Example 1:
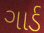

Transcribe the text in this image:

ગાર્ડ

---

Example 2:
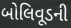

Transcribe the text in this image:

બોલિવૂડની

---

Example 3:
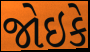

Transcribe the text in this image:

જોઇકે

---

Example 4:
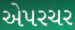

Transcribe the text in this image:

એપરચર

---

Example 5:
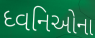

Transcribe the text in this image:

ધ્વનિઓના